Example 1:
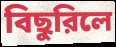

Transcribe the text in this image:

বিছুরিলে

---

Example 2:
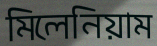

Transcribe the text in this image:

মিলেনিয়াম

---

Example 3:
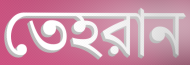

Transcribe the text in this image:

তেহরান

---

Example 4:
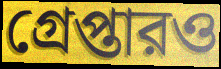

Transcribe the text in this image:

গ্রেপ্তারও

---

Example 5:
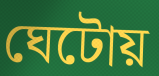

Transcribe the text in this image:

ঘেটোয়